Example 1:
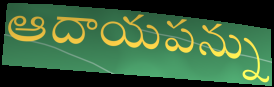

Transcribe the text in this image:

ఆదాయపన్ను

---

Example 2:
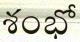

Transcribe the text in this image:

శంభో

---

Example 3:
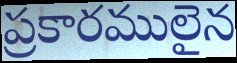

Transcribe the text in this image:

ప్రకారములైన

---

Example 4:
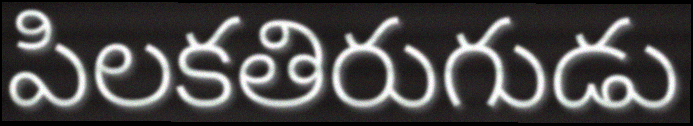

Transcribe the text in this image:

పిలకతిరుగుడు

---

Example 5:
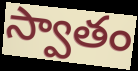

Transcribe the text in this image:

స్వాతం